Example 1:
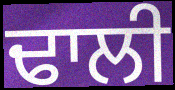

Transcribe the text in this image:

ਢਾਲੀ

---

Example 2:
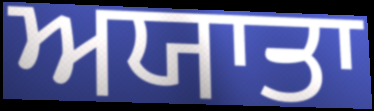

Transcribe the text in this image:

ਅਯਾਤਾ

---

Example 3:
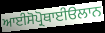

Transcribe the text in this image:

ਆਈਸੋਪ੍ਰੋਥਾਈੳਲਾਨ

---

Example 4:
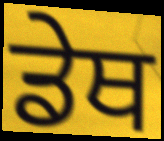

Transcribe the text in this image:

ਡੇਥ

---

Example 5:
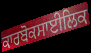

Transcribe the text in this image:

ਕਾਰਬੋਕਸਾਈਲਿਕ